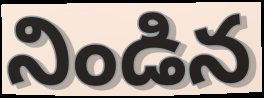
నిండిన